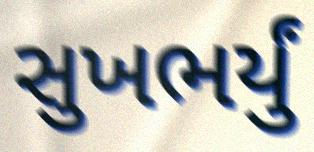
સુખભર્યું